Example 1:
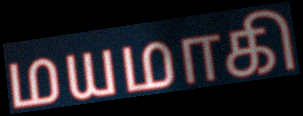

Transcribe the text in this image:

மயமாகி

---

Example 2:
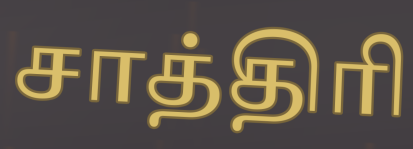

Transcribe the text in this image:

சாத்திரி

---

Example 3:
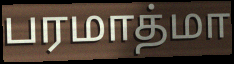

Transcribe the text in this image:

பரமாத்மா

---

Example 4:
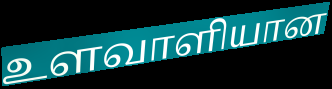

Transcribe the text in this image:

உளவாளியான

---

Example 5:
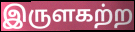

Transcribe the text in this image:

இருளகற்ற